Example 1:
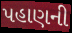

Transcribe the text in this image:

પહાણની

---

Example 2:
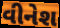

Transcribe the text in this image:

વીનેશ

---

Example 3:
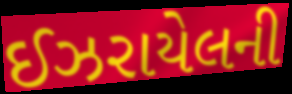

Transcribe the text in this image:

ઈઝરાયેલની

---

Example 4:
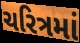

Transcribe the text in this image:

ચરિત્રમાં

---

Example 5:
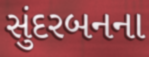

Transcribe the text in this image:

સુંદરબનના